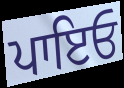
ਪਾਇਓ